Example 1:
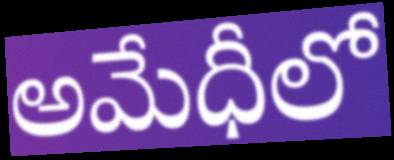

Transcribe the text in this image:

అమేధీలో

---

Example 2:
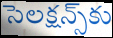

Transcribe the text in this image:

సెలక్షన్స్‌కు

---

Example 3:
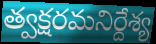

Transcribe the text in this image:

త్వక్షరమనిర్దేశ్య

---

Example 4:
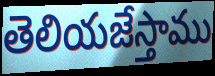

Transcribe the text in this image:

తెలియజేస్తాము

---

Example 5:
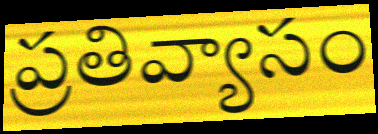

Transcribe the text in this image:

ప్రతివ్యాసం